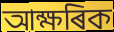
আক্ষৰিক